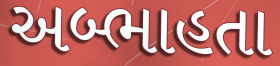
અબ્ભાહતા